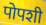
पोपशी